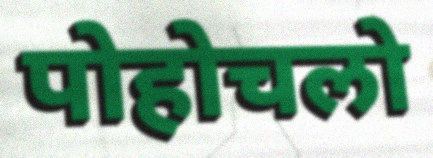
पोहोचलो